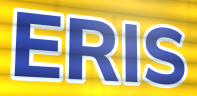
ERIS